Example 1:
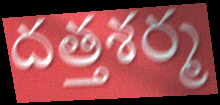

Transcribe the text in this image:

దత్తశర్మ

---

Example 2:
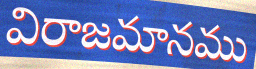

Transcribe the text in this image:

విరాజమానము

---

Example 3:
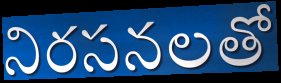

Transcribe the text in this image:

నిరసనలతో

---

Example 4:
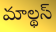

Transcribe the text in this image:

మాల్థస్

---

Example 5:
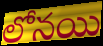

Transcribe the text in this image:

లోనయి